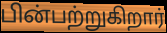
பின்பற்றுகிறார்